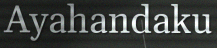
Ayahandaku